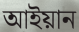
আইয়ান